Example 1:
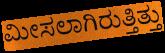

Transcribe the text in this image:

ಮೀಸಲಾಗಿರುತ್ತಿತ್ತು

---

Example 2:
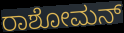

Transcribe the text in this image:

ರಾಶೋಮನ್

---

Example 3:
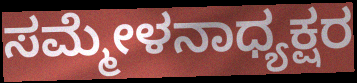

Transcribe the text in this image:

ಸಮ್ಮೇಳನಾಧ್ಯಕ್ಷರ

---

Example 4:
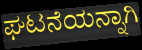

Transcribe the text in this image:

ಘಟನೆಯನ್ನಾಗಿ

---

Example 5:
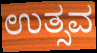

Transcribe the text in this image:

ಉತ್ಸವ